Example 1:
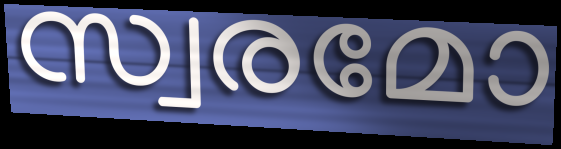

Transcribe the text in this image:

സ്വരമോ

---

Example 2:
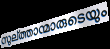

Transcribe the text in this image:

സുല്ത്താന്മാരുടെയും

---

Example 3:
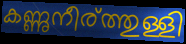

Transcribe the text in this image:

കണ്ണുനീര്ത്തുള്ളി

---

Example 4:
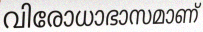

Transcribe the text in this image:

വിരോധാഭാസമാണ്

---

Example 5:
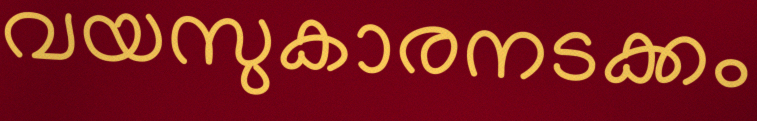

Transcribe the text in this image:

വയസുകാരനടക്കം